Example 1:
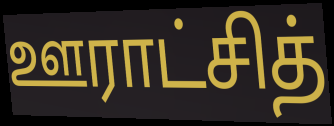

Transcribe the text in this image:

ஊராட்சித்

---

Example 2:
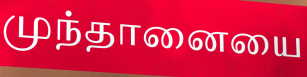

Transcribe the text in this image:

முந்தானையை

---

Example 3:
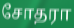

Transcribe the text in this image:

சோதரா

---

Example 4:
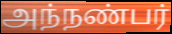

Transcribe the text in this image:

அந்நண்பர்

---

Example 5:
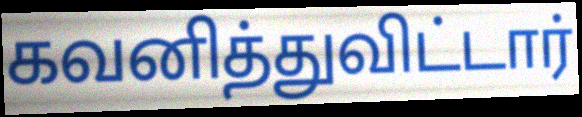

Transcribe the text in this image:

கவனித்துவிட்டார்